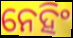
ନେହିଂ